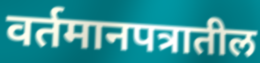
वर्तमानपत्रातील